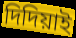
দিদিয়াই